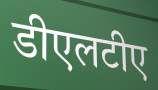
डीएलटीए